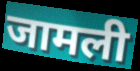
जामली